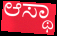
ಆಸ್ಥಾ